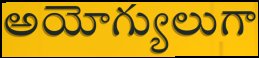
అయోగ్యులుగా